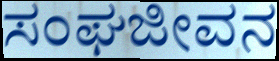
ಸಂಘಜೀವನ